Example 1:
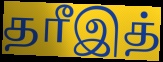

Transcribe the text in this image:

தரீஇத்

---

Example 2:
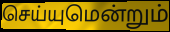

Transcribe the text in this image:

செய்யுமென்றும்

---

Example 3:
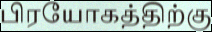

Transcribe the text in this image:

பிரயோகத்திற்கு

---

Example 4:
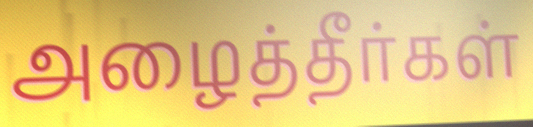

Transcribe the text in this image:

அழைத்தீர்கள்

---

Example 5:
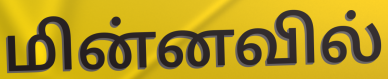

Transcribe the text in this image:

மின்னவில்